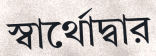
স্বার্থোদ্বার